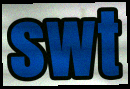
swt